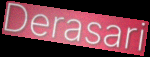
Derasari